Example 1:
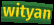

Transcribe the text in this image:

wityan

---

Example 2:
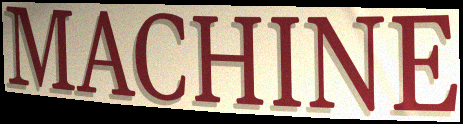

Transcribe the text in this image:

MACHINE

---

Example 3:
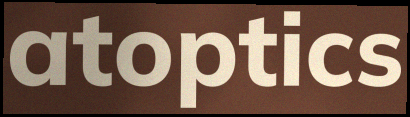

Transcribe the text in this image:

atoptics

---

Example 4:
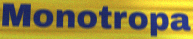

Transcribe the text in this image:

Monotropa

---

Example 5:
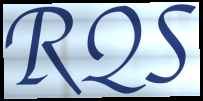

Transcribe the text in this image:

RQS